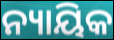
ନ୍ୟାୟିକ